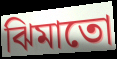
ঝিমাতো